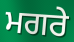
ਮਗਰੇ